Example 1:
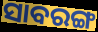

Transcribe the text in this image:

ସାବରଙ୍ଗ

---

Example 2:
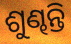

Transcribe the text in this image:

ଶୁଣ୍ଢନ୍ତି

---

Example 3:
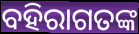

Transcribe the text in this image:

ବହିରାଗତଙ୍କ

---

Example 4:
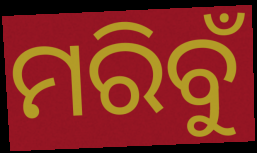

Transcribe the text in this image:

ମରିବୁଁ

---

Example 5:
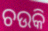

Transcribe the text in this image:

ଚଉକି